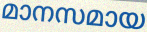
മാനസമായ